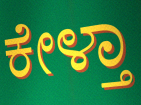
ಕೇಳ್ತಾ